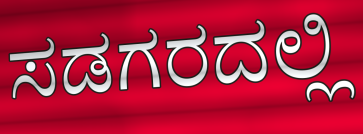
ಸಡಗರದಲ್ಲಿ